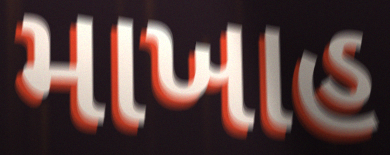
માખાહ